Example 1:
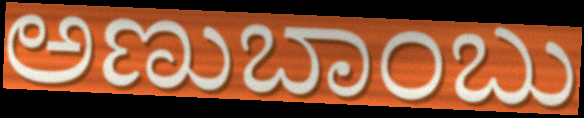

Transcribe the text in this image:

ಅಣುಬಾಂಬು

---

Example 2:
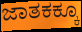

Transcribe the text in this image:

ಜಾತಕಕ್ಕೂ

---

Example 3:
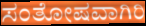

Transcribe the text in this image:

ಸಂತೋಷವಾಗಿರಿ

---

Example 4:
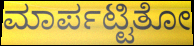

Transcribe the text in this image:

ಮಾರ್ಪಟ್ಟಿತೋ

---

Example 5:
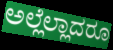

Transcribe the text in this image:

ಅಲ್ಲೆಲ್ಲಾದರೂ